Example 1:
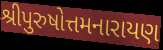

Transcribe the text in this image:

શ્રીપુરુષોત્તમનારાયણ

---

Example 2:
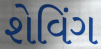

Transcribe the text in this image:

શેવિંગ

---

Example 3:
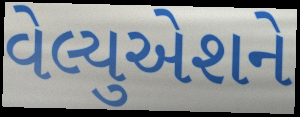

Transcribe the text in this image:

વેલ્યુએશને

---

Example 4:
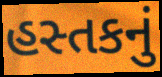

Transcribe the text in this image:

હસ્તકનું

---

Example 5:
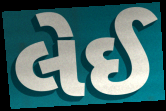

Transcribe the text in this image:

લેઈ